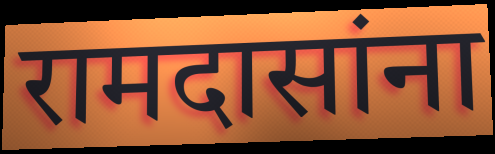
रामदासांना